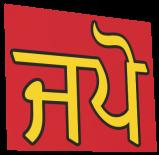
ਜਪੋ